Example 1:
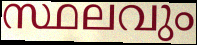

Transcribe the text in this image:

സ്ഥലവും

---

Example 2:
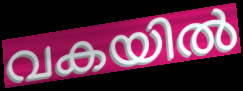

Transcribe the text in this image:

വകയിൽ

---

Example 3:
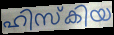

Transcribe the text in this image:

ഹിസ്കിയ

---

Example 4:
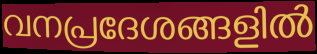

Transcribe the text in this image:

വനപ്രദേശങ്ങളിൽ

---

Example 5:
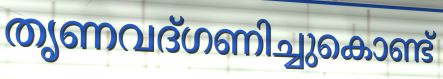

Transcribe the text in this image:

തൃണവദ്ഗണിച്ചുകൊണ്ട്